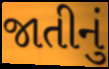
જાતીનું